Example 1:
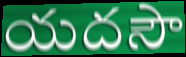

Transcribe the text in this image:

యదసౌ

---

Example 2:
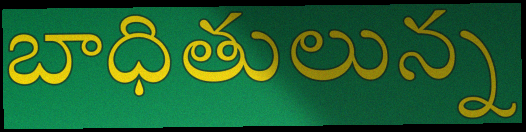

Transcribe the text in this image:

బాధితులున్న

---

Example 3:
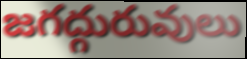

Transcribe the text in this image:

జగద్గురువులు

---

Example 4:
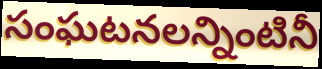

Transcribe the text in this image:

సంఘటనలన్నింటినీ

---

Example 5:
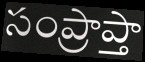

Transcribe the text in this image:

సంప్రాప్తా